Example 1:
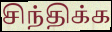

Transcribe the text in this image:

சிந்திக்க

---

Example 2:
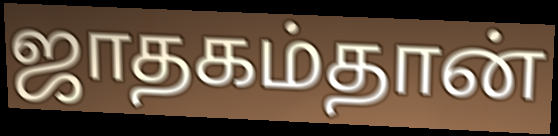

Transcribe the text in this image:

ஜாதகம்தான்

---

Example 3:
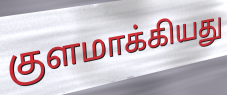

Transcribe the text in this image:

குளமாக்கியது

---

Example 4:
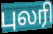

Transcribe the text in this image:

புலரி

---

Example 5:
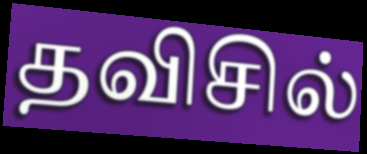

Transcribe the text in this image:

தவிசில்